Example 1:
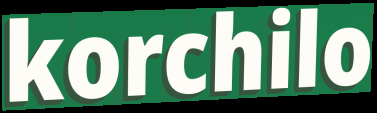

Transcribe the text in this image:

korchilo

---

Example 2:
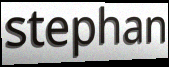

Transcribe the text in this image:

stephan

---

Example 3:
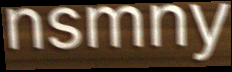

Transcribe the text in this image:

nsmny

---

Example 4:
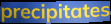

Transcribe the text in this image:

precipitates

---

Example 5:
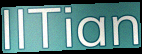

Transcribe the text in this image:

IITian